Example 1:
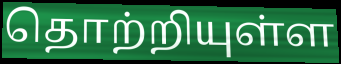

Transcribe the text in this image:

தொற்றியுள்ள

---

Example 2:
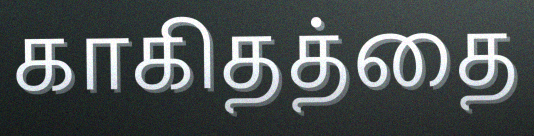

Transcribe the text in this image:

காகிதத்தை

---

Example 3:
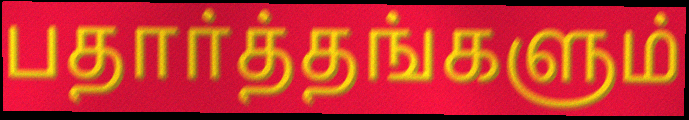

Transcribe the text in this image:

பதார்த்தங்களும்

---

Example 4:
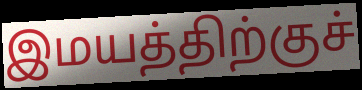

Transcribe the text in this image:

இமயத்திற்குச்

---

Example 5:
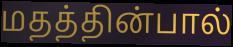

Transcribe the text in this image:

மதத்தின்பால்